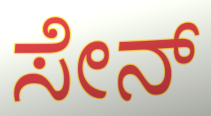
ಸೇನ್